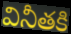
వినీతకి